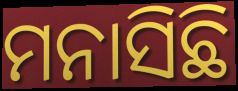
ମନାସିଛି